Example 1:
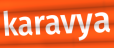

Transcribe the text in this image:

karavya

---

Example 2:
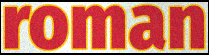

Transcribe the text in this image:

roman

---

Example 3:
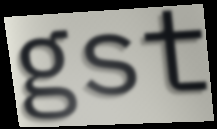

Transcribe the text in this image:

gst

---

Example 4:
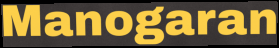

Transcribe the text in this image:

Manogaran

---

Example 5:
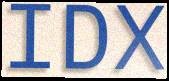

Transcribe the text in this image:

IDX